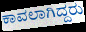
ಕಾವಲಾಗಿದ್ದರು